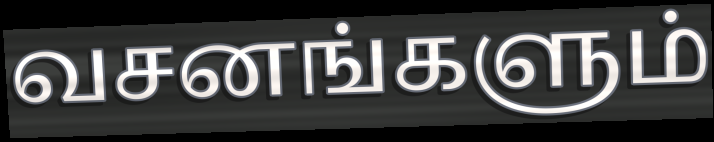
வசனங்களும்